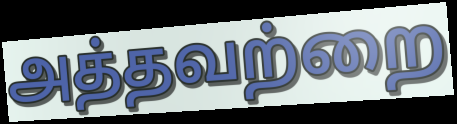
அத்தவற்றை